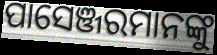
ପାସେଞ୍ଜରମାନଙ୍କୁ